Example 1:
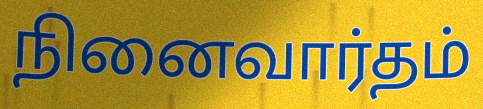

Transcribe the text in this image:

நினைவார்தம்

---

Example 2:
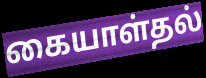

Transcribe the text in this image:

கையாள்தல்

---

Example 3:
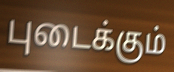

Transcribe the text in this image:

புடைக்கும்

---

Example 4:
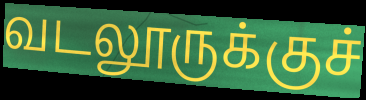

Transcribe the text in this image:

வடலூருக்குச்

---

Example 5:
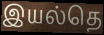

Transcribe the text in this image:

இயல்தெ